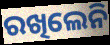
ରଖିଲେନି